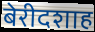
बेरीदशाह